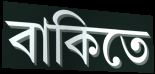
বাকিতে